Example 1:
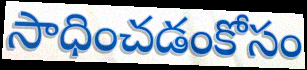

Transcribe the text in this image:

సాధించడంకోసం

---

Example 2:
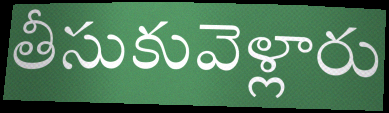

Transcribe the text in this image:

తీసుకువెళ్లారు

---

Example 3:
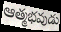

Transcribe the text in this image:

ఆత్మభవుడు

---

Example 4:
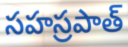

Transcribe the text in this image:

సహస్రపాత్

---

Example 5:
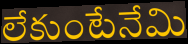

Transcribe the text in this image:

లేకుంటేనేమి